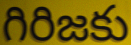
గిరిజకు